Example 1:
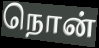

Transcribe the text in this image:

நொன்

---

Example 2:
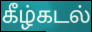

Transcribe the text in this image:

கீழ்கடல்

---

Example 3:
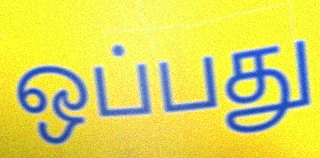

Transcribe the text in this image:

ஒப்பது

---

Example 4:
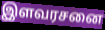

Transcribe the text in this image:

இளவரசனை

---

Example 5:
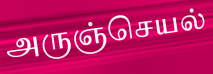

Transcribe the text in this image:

அருஞ்செயல்